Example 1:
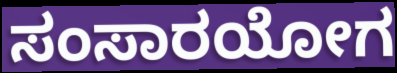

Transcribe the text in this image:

ಸಂಸಾರಯೋಗ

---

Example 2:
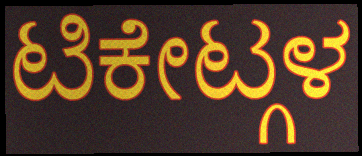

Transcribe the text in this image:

ಟಿಕೇಟ್ಗಳ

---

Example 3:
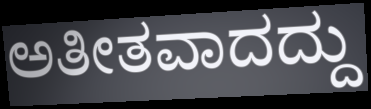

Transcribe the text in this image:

ಅತೀತವಾದದ್ದು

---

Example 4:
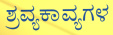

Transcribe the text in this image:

ಶ್ರವ್ಯಕಾವ್ಯಗಳ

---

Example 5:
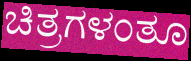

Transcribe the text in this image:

ಚಿತ್ರಗಳಂತೂ